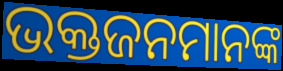
ଭକ୍ତଜନମାନଙ୍କ